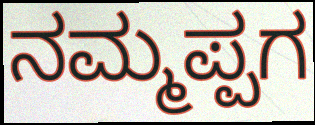
ನಮ್ಮಪ್ಪಗ